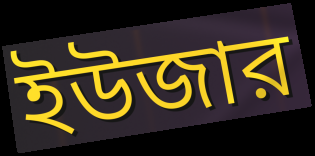
ইউজার